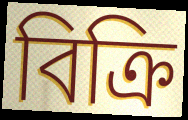
বিক্রি